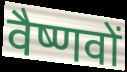
वैष्णवों